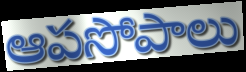
ఆపసోపాలు